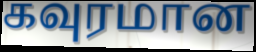
கவுரமான